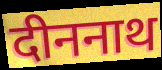
दीननाथ